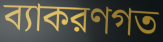
ব্যাকরণগত